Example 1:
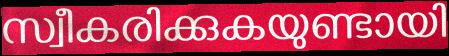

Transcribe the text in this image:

സ്വീകരിക്കുകയുണ്ടായി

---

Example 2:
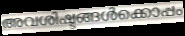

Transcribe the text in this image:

അവശിഷ്ടങ്ങൾക്കൊപ്പം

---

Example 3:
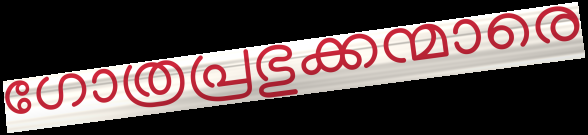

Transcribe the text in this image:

ഗോത്രപ്രഭുക്കന്മാരെ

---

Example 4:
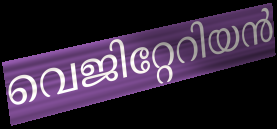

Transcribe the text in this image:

വെജിറ്റേറിയൻ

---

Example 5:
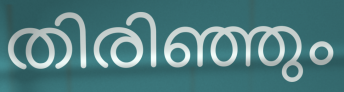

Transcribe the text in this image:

തിരിഞ്ഞും